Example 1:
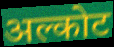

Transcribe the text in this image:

अल्कोट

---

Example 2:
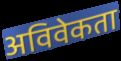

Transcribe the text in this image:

अविवेकता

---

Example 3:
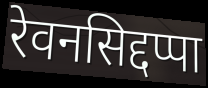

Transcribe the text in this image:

रेवनसिद्दप्पा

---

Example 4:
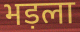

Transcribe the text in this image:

भड़ला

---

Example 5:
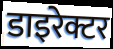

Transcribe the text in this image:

डाइरेक्टर